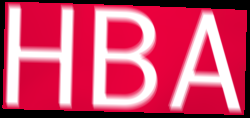
HBA